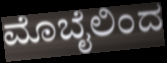
ಮೊಬೈಲಿಂದ